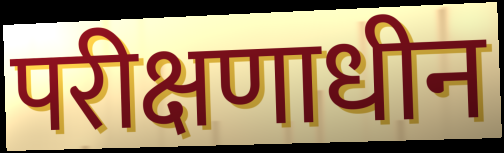
परीक्षणाधीन